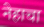
नेहाचा